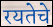
रयतेचे